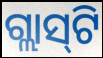
ଗ୍ଲାସ୍‍ଟି